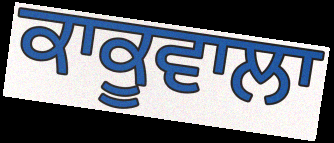
ਕਾਕੂਵਾਲਾ